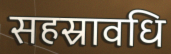
सहस्रावधि